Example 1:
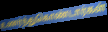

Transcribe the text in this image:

உணர்ந்துகொண்டார்கள்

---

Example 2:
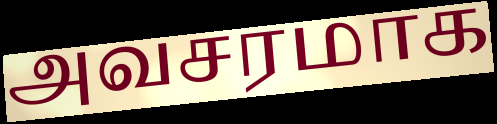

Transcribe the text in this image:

அவசரமாக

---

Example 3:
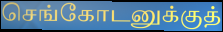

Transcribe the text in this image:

செங்கோடனுக்குத்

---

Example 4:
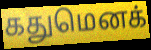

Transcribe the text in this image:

கதுமெனக்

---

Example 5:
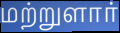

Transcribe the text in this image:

மற்றுளார்